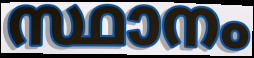
സ്ഥാനം